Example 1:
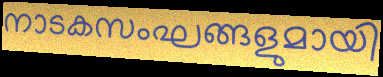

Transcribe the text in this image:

നാടകസംഘങ്ങളുമായി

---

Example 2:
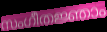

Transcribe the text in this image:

സംഗീതജ്ഞാം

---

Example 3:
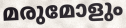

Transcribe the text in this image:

മരുമോളും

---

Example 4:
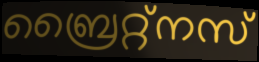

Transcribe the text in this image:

ബ്രൈറ്റ്നസ്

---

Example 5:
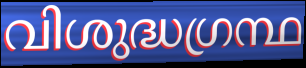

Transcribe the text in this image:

വിശുദ്ധഗ്രന്ഥ